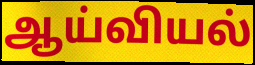
ஆய்வியல்